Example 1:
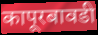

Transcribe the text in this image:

कापूरबावडी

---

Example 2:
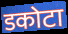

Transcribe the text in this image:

डकोटा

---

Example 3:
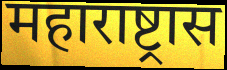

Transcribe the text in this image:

महाराष्ट्रास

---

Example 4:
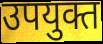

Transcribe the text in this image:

उपयुक्त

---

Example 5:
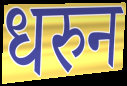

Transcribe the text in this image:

धरुन